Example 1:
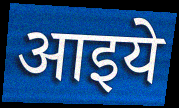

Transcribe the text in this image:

आइये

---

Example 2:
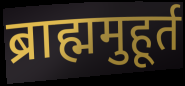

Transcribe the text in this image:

ब्राह्ममुहूर्त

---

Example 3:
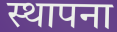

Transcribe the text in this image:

स्थापना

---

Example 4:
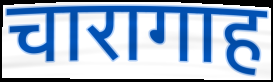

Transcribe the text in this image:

चारागाह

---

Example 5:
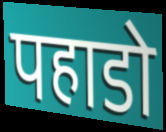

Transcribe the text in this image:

पहाडो